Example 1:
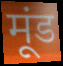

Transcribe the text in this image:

मूंड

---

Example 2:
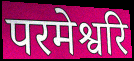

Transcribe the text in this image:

परमेश्वरि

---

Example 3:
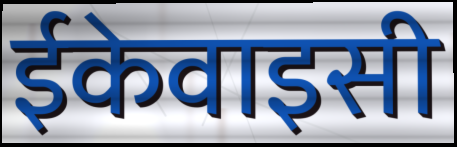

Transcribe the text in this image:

ईकेवाइसी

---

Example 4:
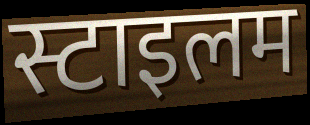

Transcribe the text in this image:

स्टाइलम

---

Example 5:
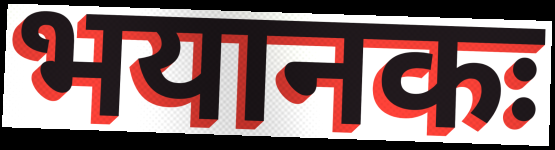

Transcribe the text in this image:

भयानकः